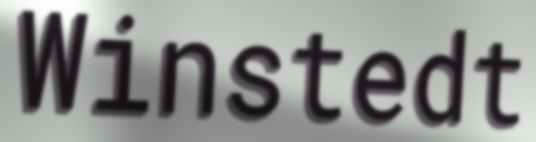
Winstedt